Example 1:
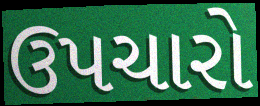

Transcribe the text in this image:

ઉપચારો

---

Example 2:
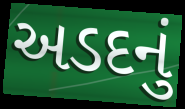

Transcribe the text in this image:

અડદનું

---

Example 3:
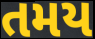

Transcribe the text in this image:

તમય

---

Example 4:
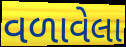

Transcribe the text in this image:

વળાવેલા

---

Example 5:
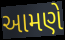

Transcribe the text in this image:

આમણે